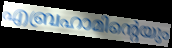
എബ്രഹാമിന്റെയും